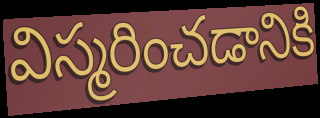
విస్మరించడానికి